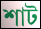
শাট